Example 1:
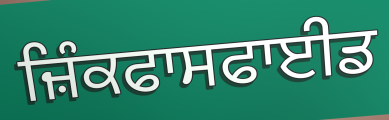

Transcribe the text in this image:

ਜ਼ਿੰਕਫਾਸਫਾਈਡ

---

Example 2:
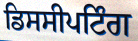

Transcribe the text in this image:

ਡਿਸਸੀਪਟਿੰਗ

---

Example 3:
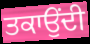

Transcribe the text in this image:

ਤਕਾਉਂਦੀ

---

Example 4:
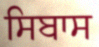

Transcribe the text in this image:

ਸਿਬਾਸ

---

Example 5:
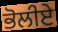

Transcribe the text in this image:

ਭੋਲੀਏ